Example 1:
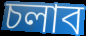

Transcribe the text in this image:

চলাব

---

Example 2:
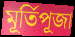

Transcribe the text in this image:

মূৰ্তিপূজা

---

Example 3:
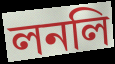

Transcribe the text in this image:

লনলি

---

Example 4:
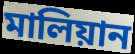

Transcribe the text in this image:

মালিয়ান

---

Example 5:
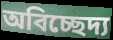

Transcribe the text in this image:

অবিচ্ছেদ্য